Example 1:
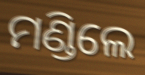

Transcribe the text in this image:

ମଣ୍ଡିଲେ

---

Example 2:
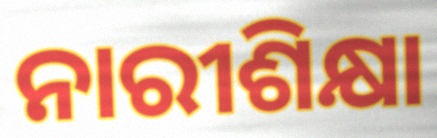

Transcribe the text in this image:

ନାରୀଶିକ୍ଷା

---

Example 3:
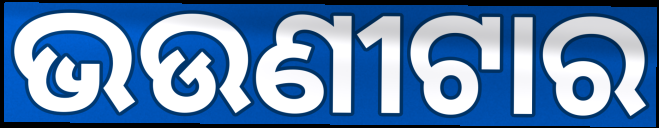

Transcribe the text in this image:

ଭଉଣୀଟାର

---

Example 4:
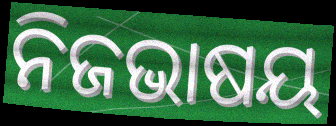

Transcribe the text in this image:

ନିଜଭାଷୟ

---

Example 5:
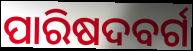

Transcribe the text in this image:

ପାରିଷଦବର୍ଗ